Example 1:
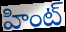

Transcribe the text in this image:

హింట్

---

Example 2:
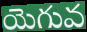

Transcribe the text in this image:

యెగువ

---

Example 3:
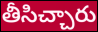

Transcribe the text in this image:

తీసిచ్చారు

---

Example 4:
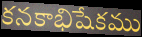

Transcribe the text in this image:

కనకాభిషేకము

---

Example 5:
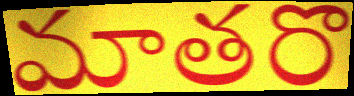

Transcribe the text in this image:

మాతరొ